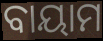
ବାୟାମ